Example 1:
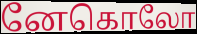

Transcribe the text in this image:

னேகொலோ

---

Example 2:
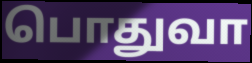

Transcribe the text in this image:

பொதுவா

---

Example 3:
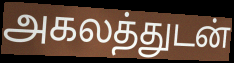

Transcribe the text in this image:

அகலத்துடன்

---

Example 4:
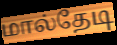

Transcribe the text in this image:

மால்தேடி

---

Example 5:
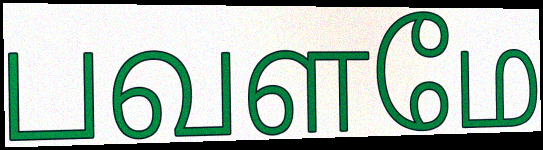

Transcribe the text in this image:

பவளமே